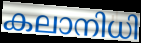
കലാനിധി